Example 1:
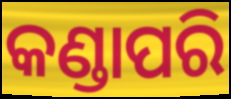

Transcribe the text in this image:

କଣ୍ଡାପରି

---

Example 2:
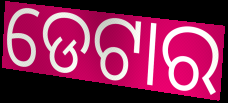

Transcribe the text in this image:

ଡେଟାର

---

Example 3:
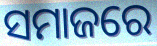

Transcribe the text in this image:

ସମାଜରେ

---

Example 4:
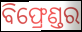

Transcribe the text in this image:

ବିଫ୍ରେଣ୍ଡର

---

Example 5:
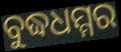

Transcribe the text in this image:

ବୁଦ୍ଧଧମ୍ମର